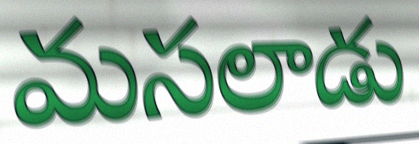
మసలాడు